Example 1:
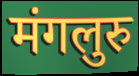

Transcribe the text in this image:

मंगलुरु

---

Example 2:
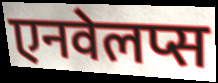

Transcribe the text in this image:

एनवेलप्स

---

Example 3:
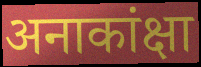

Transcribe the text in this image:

अनाकांक्षा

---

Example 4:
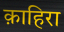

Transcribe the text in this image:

क़ाहिरा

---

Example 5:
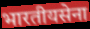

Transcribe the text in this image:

भारतीयसेना